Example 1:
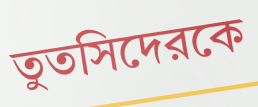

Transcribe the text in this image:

তুতসিদেরকে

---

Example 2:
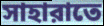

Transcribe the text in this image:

সাহারাতে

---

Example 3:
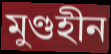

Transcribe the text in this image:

মুণ্ডহীন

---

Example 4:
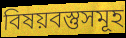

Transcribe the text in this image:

বিষয়বস্তুসমূহ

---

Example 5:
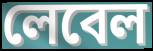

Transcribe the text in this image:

লেবেল